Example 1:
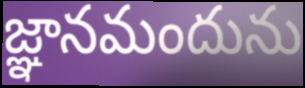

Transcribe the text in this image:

జ్ఞానమందును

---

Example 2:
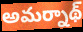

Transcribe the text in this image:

అమర్నాథ్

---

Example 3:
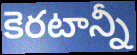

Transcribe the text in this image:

కెరటాన్నీ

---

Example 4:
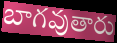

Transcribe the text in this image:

బాగవుతారు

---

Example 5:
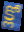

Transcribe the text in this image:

క్లో